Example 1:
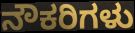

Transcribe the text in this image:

ನೌಕರಿಗಳು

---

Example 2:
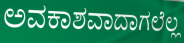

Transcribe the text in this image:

ಅವಕಾಶವಾದಾಗಲೆಲ್ಲ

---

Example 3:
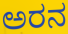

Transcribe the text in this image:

ಅರನ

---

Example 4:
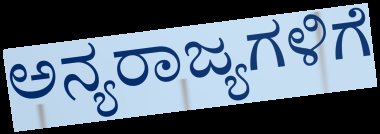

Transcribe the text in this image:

ಅನ್ಯರಾಜ್ಯಗಳಿಗೆ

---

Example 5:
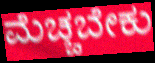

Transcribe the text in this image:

ಮೆಚ್ಚಬೇಕು